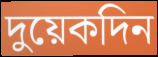
দুয়েকদিন